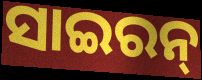
ସାଇରନ୍